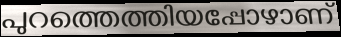
പുറത്തെത്തിയപ്പോഴാണ്